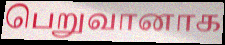
பெறுவானாக